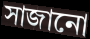
সাজানো